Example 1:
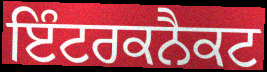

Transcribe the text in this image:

ਇੰਟਰਕਨੈਕਟ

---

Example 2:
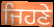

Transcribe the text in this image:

ਜਿਹਣੇ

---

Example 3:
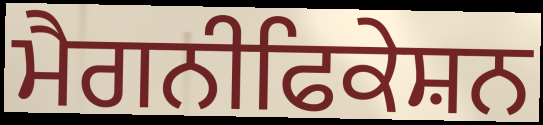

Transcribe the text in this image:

ਮੈਗਨੀਫਿਕੇਸ਼ਨ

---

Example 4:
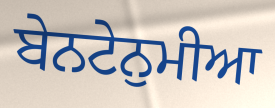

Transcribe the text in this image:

ਬੇਨਟੇਨੁਮੀਆ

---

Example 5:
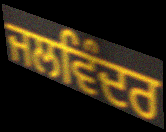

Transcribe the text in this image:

ਜਲਵਿੰਦਰ